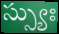
స్స్యుః